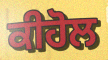
ਕੀਹੋਲ